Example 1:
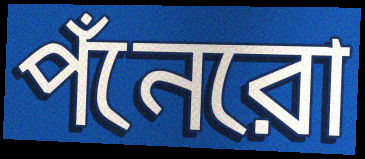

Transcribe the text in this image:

পঁনেরো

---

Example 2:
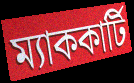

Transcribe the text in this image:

ম্যাককার্টি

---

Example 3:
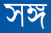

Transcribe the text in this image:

সঙ্গ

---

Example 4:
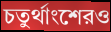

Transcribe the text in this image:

চতুর্থাংশেরও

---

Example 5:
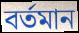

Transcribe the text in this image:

বর্তমান